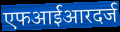
एफआईआरदर्ज